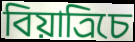
বিয়াত্রিচে